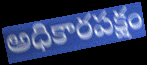
అధికారపక్షం